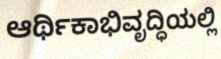
ಆರ್ಥಿಕಾಭಿವೃದ್ಧಿಯಲ್ಲಿ